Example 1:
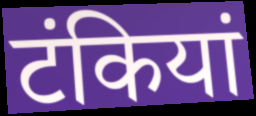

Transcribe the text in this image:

टंकियां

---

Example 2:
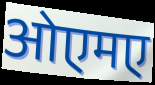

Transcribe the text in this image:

ओएमए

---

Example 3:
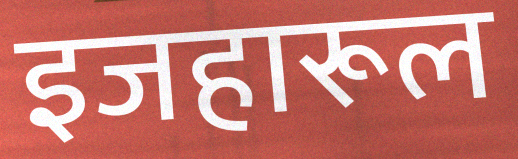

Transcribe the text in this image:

इजहारूल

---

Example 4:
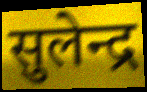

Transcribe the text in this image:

सुलेन्द्र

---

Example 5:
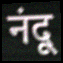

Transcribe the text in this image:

नंदू